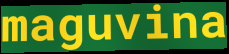
maguvina